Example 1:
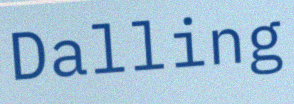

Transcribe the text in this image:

Dalling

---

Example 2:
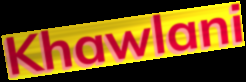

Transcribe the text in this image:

Khawlani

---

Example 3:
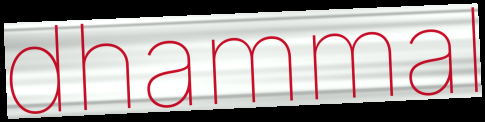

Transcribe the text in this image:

dhammal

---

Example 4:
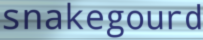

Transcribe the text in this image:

snakegourd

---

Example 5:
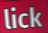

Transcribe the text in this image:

lick